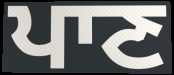
ਪਾਣ